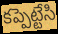
కప్పెట్టేసి